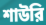
শাউরি